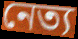
নেত্য